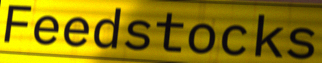
Feedstocks